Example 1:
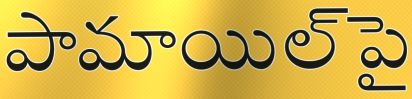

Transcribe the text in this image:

పామాయిల్‌పై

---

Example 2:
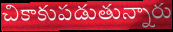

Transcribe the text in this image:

చికాకుపడుతున్నారు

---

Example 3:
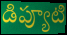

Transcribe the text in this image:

డిప్యూటి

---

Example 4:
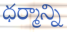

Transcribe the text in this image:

ధర్మాన్ని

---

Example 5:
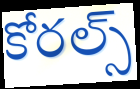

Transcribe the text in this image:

కోరల్స్